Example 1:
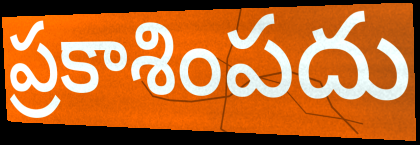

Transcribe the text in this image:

ప్రకాశింపదు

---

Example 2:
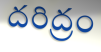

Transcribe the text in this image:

దరిద్రం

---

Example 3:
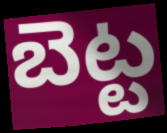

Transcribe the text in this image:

బెట్ట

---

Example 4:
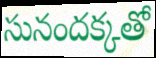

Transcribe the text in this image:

సునందక్కతో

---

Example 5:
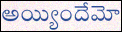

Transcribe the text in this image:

అయ్యిందేమో